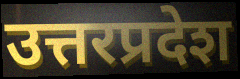
उत्तरप्रदेश